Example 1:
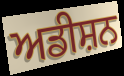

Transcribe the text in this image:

ਅਡੀਸ਼ਨ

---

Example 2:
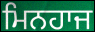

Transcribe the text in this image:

ਮਿਨਹਾਜ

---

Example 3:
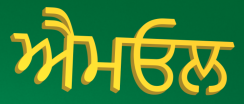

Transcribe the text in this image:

ਐਮਓਲ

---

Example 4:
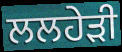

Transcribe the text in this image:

ਲਲਹੇੜੀ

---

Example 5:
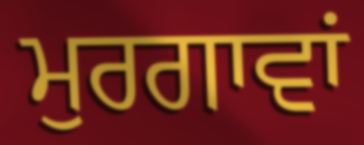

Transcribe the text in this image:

ਮੁਰਗਾਵਾਂ